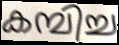
കമ്പിച്ച